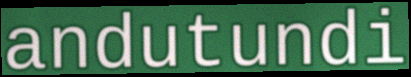
andutundi